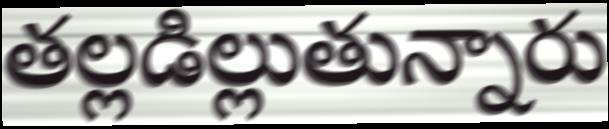
తల్లడిల్లుతున్నారు